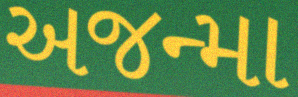
અજન્મા